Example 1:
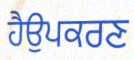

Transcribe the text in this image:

ਹੈਉਪਕਰਣ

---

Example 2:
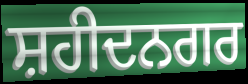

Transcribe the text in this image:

ਸ਼ਹੀਦਨਗਰ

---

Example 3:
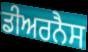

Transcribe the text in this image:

ਡੀਅਰਨੈਸ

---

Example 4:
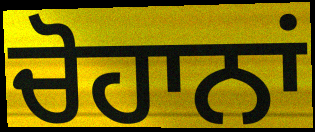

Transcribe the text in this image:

ਚੋਹਾਨਾਂ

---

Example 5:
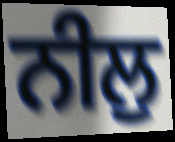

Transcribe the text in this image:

ਨੀਲੁ